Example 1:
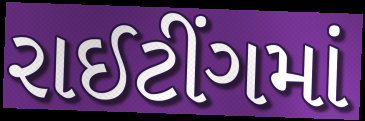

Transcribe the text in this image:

રાઈટીંગમાં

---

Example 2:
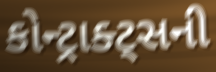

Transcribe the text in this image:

કોન્ટ્રાક્ટ્સની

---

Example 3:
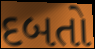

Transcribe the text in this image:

દબતો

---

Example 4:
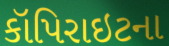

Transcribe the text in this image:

કૉપિરાઇટના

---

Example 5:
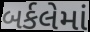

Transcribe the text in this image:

બર્કલેમાં